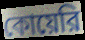
কোয়েরি